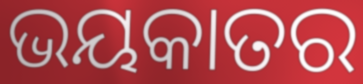
ଭୟକାତର